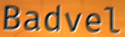
Badvel